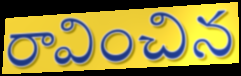
రావించిన